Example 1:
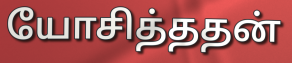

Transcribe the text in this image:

யோசித்ததன்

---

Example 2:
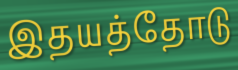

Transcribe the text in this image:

இதயத்தோடு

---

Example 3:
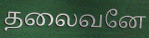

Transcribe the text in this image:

தலைவனே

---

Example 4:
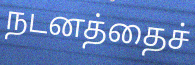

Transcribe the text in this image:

நடனத்தைச்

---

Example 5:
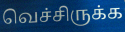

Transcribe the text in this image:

வெச்சிருக்க